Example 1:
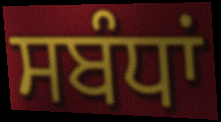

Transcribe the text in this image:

ਸਬੰਧਾਂ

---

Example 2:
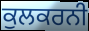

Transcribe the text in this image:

ਕੁਲਕਰਨੀ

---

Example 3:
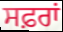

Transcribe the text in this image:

ਸਫ਼ਰਾਂ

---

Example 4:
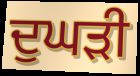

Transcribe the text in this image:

ਦੁਘੜੀ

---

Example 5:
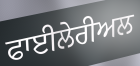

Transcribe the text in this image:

ਫਾਈਲੇਰੀਅਲ